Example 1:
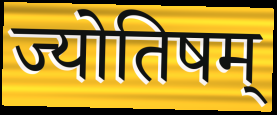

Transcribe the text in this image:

ज्योतिषम्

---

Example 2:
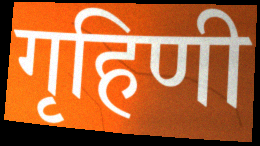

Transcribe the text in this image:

गृहिणी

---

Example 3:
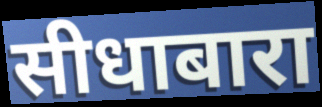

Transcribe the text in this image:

सीधाबारा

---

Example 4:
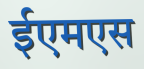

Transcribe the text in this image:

ईएमएस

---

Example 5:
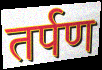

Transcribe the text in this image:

तर्पण